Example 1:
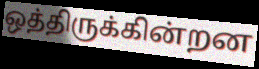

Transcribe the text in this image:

ஒத்திருக்கின்றன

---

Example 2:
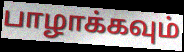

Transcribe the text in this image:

பாழாக்கவும்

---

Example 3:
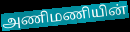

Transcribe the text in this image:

அணிமணியின்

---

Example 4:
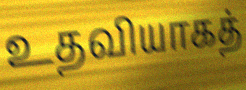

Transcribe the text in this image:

உதவியாகத்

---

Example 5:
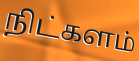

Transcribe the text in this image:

நிட்களம்